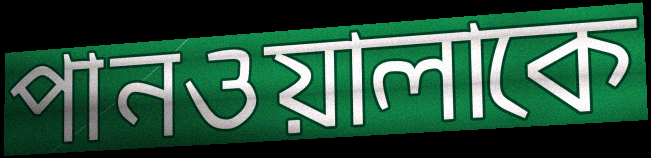
পানওয়ালাকে